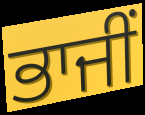
ਭਾਜੀਂ